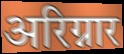
अरिग्नार